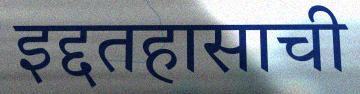
इद्दतहासाची